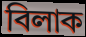
বিলাক